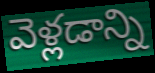
వెళ్లడాన్ని